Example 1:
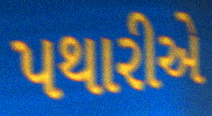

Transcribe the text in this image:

પથારીએ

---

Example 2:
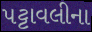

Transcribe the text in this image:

પટ્ટાવલીના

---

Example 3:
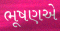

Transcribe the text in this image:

ભૂષણએ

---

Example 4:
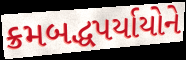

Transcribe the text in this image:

ક્રમબદ્ધપર્યાયોને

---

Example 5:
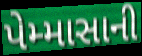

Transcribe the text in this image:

પેમ્માસાની